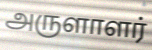
அருளாளர்